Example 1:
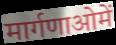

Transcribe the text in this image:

मार्गणाओमें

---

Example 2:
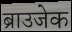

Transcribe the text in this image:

ब्राउजेक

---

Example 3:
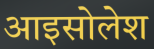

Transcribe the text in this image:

आइसोलेश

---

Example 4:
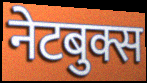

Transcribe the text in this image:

नेटबुक्स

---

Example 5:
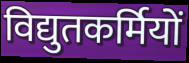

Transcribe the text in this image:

विद्युतकर्मियों